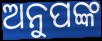
ଅନୁପଙ୍କ